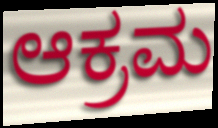
ಆಕ್ರಮ